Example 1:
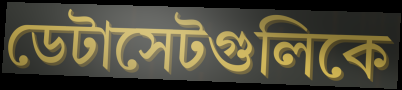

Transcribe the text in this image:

ডেটাসেটগুলিকে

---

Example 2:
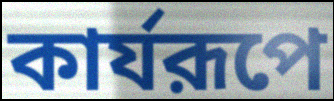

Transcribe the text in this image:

কার্যরূপে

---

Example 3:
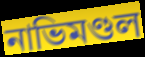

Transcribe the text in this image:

নাভিমণ্ডল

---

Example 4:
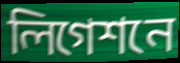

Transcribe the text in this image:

লিগেশনে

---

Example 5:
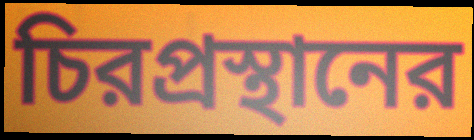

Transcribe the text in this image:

চিরপ্রস্থানের